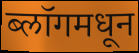
ब्लॉगमधून